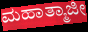
ಮಹಾತ್ಮಾಜೀ